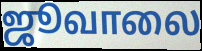
ஜூவாலை